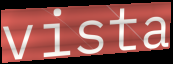
vista